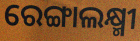
ରେଙ୍ଗାଲକ୍ଷ୍ମୀ